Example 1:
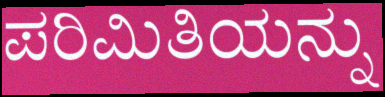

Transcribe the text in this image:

ಪರಿಮಿತಿಯನ್ನು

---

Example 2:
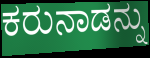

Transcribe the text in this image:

ಕರುನಾಡನ್ನು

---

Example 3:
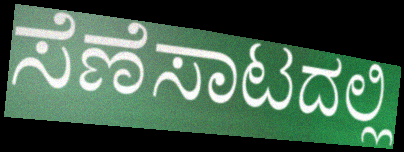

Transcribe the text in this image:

ಸೆಣೆಸಾಟದಲ್ಲಿ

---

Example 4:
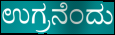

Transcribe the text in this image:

ಉಗ್ರನೆಂದು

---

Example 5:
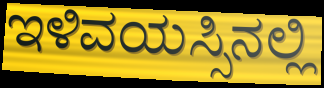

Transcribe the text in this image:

ಇಳಿವಯಸ್ಸಿನಲ್ಲಿ